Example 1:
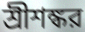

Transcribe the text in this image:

শ্রীশঙ্কর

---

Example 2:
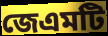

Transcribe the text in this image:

জেএমটি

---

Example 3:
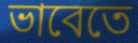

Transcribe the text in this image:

ভাবেতে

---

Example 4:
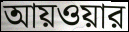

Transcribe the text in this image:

আয়ওয়ার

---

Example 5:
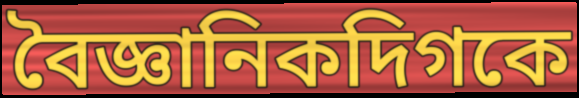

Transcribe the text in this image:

বৈজ্ঞানিকদিগকে